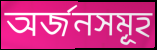
অর্জনসমূহ